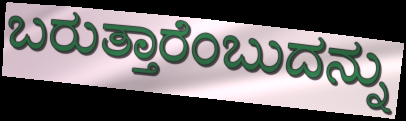
ಬರುತ್ತಾರೆಂಬುದನ್ನು